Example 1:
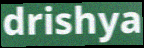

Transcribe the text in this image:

drishya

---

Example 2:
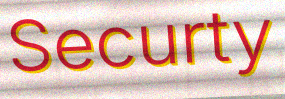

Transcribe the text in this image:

Securty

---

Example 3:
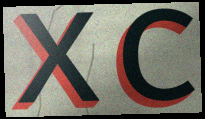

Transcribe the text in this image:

xc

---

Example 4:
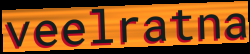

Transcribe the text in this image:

veelratna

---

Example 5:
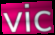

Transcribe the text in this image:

vic